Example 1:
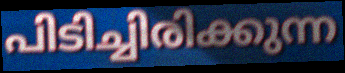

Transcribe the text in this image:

പിടിച്ചിരിക്കുന്ന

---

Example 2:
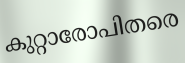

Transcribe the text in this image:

കുറ്റാരോപിതരെ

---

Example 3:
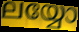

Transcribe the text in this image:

ലയ്യോ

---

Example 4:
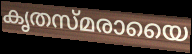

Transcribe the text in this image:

കൃതസ്മരായൈ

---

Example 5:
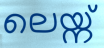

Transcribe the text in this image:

ലെയ്ന്